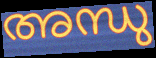
അന്ധു